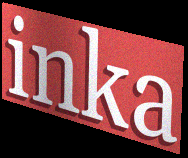
inka